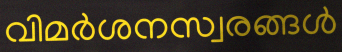
വിമർശനസ്വരങ്ങൾ